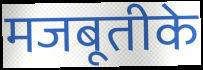
मजबूतीके